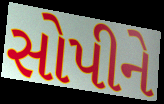
સોપીને